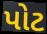
પોટ